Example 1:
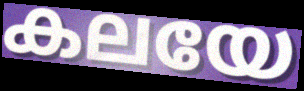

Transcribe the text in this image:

കലയേ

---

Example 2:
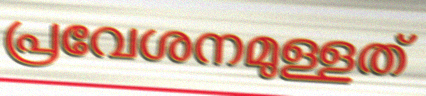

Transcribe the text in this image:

പ്രവേശനമുള്ളത്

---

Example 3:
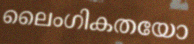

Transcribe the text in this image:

ലൈംഗികതയോ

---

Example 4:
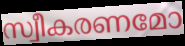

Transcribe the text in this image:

സ്വീകരണമോ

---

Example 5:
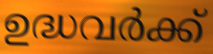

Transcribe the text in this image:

ഉദ്ധവർക്ക്